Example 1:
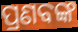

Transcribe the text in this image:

ପ୍ରଣବଙ୍କ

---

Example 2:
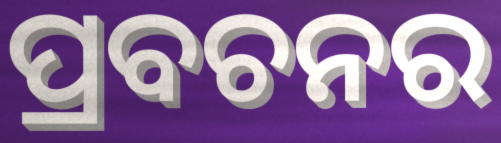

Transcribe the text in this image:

ପ୍ରବଚନର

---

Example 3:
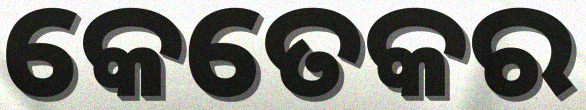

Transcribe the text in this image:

କେତେକର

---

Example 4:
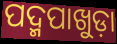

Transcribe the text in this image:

ପଦ୍ମପାଖୁଡ଼ା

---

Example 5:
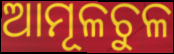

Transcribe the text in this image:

ଆମୂଳଚୁଳ